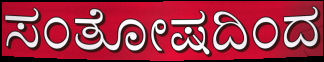
ಸಂತೋಷದಿಂದ